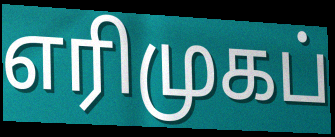
எரிமுகப்